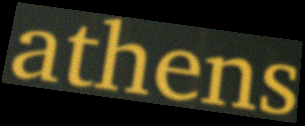
athens